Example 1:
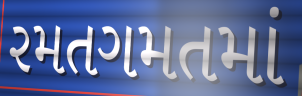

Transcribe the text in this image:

રમતગમતમાં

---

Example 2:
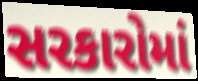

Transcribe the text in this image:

સરકારોમાં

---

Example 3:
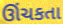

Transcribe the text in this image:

ઊંચકતા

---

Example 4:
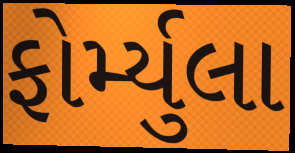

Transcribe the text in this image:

ફોર્મ્યુલા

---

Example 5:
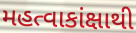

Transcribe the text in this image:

મહત્વાકાંક્ષાથી